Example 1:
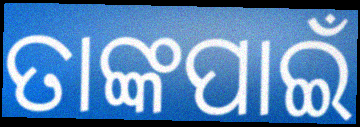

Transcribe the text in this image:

ତାଙ୍କପାଇଁ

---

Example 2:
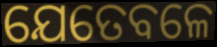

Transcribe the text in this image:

ଯେତେବଳେ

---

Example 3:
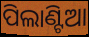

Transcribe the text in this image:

ପିଲାଣ୍ଟିଆ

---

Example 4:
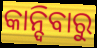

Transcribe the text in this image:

କାନ୍ଦିବାରୁ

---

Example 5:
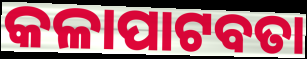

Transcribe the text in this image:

କଳାପାଟବତା